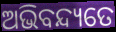
ଅଭିବନ୍ଦ୍ୟତେ